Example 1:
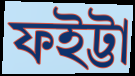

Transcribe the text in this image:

ফইট্টা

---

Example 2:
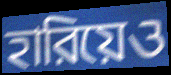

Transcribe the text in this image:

হারিয়েও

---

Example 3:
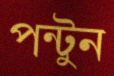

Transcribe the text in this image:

পন্টুন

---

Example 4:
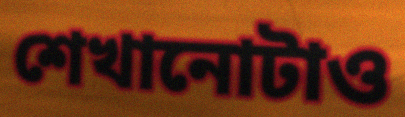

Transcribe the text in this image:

শেখানোটাও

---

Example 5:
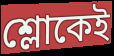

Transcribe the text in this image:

শ্লোকেই